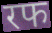
रफ